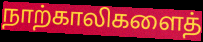
நாற்காலிகளைத்